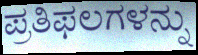
ಪ್ರತಿಫಲಗಳನ್ನು